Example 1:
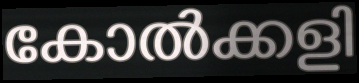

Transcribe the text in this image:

കോൽക്കളി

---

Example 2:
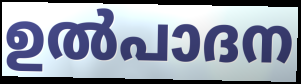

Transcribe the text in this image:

ഉൽപാദന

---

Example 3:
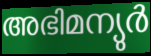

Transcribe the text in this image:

അഭിമന്യുർ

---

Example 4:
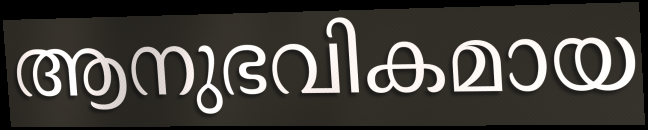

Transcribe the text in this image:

ആനുഭവികമായ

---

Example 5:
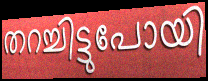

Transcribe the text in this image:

തറച്ചിട്ടുപോയി